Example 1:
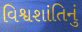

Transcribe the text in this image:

વિશ્વશાંતિનું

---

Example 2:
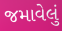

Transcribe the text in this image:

જમાવેલું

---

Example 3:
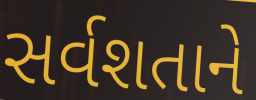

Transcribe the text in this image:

સર્વશતાને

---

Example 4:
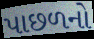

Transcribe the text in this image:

પાછળનો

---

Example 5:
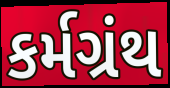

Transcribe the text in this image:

કર્મગ્રંથ